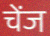
चेंज